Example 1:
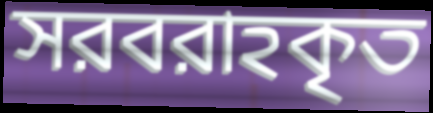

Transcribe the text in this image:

সরবরাহকৃত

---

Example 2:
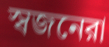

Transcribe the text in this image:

স্বজনেরা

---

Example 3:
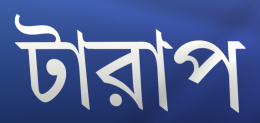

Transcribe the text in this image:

টারাপ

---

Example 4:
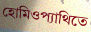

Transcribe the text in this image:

হোমিওপ্যাথিতে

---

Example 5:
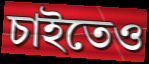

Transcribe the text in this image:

চাইতেও